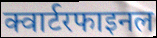
क्वार्टरफाइनल